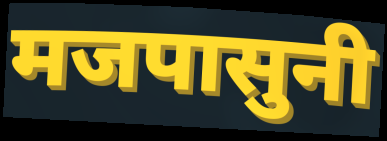
मजपासुनी